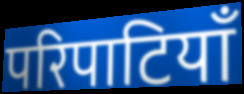
परिपाटियाँ